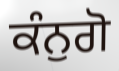
ਕੰਨੁਗੋ